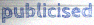
publicised